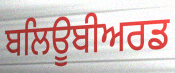
ਬਲਿਊਬੀਅਰਡ